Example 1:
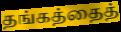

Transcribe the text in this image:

தங்கத்தைத்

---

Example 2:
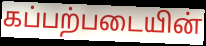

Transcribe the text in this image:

கப்பற்படையின்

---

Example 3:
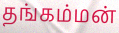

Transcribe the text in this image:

தங்கம்மன்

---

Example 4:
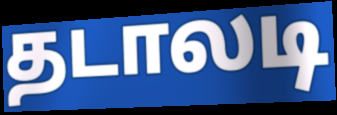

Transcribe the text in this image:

தடாலடி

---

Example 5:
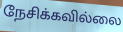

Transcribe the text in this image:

நேசிக்கவில்லை